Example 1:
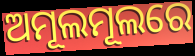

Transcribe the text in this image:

ଅମୂଲମୂଲରେ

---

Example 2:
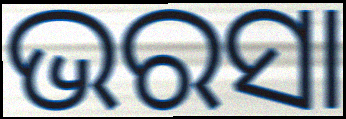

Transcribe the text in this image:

ଭରସା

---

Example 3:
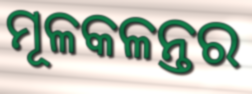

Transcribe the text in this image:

ମୂଳକଳନ୍ତର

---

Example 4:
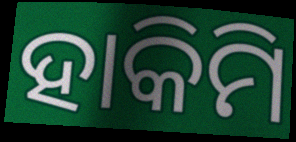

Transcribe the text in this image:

ହାକିମି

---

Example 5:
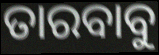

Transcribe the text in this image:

ତାରବାବୁ